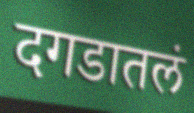
दगडातलं